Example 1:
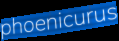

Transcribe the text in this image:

phoenicurus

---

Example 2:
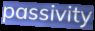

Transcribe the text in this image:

passivity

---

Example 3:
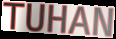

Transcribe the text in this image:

TUHAN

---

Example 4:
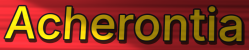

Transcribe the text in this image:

Acherontia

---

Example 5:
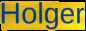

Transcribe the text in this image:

Holger